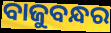
ବାଜୁବନ୍ଧର